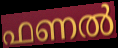
ഫണൽ